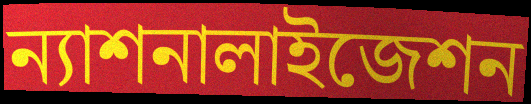
ন্যাশনালাইজেশন